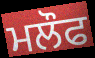
ਮਲੌਫ